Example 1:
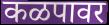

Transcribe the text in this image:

कळपावर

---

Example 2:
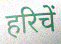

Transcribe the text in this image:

हरिचें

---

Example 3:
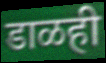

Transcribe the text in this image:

डाळही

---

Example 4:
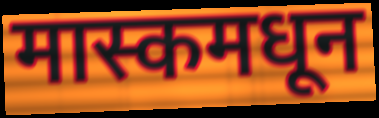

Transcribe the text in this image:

मास्कमधून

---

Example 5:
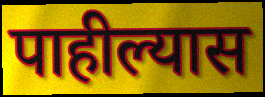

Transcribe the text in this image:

पाहील्यास